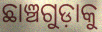
ଛାଞ୍ଚଗୁଡ଼ାକୁ